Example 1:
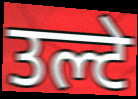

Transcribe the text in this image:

उल्टे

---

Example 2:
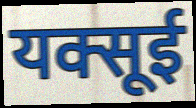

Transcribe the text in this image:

यक्सूई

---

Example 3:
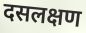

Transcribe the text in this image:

दसलक्षण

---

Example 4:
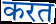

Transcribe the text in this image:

करत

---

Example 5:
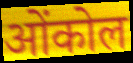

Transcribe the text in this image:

ओंकोल